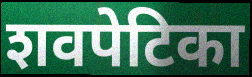
शवपेटिका